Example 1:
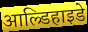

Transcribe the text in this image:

आल्डिहाइडे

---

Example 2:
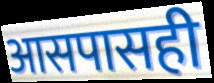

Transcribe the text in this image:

आसपासही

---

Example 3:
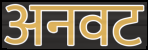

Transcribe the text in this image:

अनवट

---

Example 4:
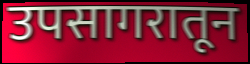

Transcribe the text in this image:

उपसागरातून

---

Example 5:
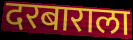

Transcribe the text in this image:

दरबाराला